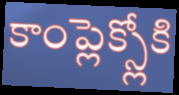
కాంప్లెక్స్లోకి